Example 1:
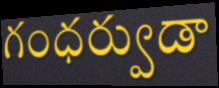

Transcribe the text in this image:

గంధర్వుడా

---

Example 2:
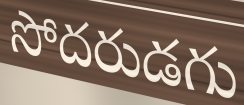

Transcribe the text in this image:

సోదరుడగు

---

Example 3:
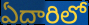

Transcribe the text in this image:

ఏదారిలో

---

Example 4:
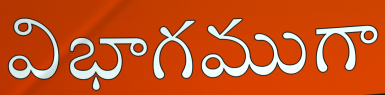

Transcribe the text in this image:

విభాగముగా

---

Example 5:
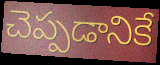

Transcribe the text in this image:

చెప్పడానికే